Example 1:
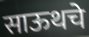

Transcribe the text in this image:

साऊथचे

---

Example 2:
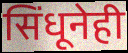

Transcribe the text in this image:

सिंधूनेही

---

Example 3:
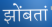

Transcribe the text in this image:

झोंबतां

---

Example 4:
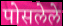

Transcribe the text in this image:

पोसलेले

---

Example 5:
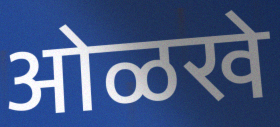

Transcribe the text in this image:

ओळखे